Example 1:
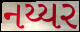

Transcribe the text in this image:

નય્યર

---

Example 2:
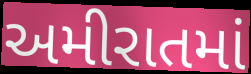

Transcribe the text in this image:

અમીરાતમાં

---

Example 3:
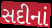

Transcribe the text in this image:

સદીનાં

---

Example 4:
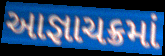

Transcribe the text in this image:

આજ્ઞાચક્રમાં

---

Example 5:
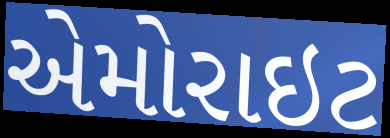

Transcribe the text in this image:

એમોરાઇટ